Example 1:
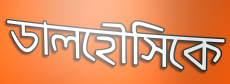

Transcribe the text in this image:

ডালহৌসিকে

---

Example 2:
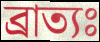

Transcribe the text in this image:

ব্রাত্যঃ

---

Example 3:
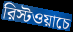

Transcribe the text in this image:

রিস্টওয়াচে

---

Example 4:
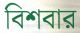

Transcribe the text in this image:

বিশবার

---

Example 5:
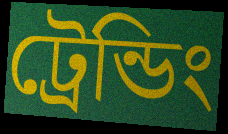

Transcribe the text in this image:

ট্রেন্ডিং